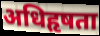
अधिहृषता